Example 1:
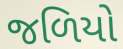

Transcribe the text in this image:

જળિયો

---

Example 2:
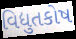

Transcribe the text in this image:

વિદ્યુતકોષ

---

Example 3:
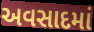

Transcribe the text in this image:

અવસાદમાં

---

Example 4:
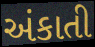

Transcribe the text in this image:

અંકાતી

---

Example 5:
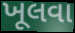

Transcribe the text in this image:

ખૂલવા